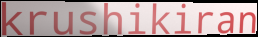
krushikiran